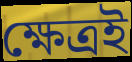
ক্ষেত্রই